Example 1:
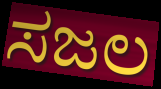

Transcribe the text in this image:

ಸಜಲ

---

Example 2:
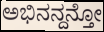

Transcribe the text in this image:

ಅಭಿನನ್ದನ್ತೋ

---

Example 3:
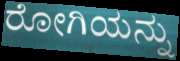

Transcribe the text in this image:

ರೋಗಿಯನ್ನು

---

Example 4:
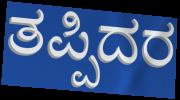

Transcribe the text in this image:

ತಪ್ಪಿದರ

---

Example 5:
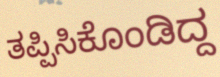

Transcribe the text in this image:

ತಪ್ಪಿಸಿಕೊಂಡಿದ್ದ